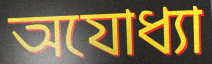
অযোধ্যা